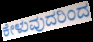
ಕೇಳುವುದರಿಂದ